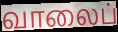
வாலைப்